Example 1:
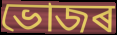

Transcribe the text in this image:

ভোজৰ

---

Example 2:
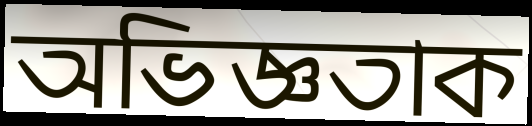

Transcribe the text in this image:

অভিজ্ঞতাক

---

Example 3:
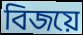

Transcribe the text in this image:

বিজয়ে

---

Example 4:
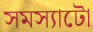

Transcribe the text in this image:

সমস্যাটো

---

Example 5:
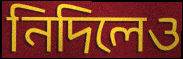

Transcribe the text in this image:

নিদিলেও